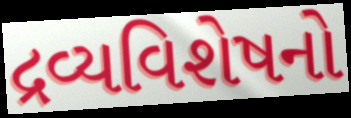
દ્રવ્યવિશેષનો